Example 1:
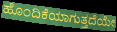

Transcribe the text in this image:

ಹೊಂದಿಕೆಯಾಗುತ್ತದೆಯೇ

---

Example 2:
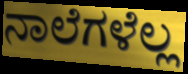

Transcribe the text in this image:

ನಾಲೆಗಳೆಲ್ಲ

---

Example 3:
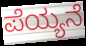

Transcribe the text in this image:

ಪೆಯ್ಯನೆ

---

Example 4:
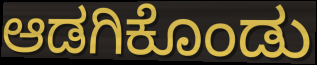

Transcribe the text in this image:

ಆಡಗಿಕೊಂಡು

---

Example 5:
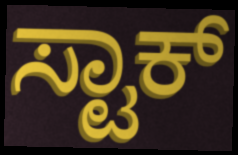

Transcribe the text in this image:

ಸ್ಟಾಕ್